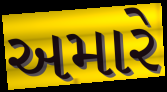
અમારે